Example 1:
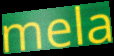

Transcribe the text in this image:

mela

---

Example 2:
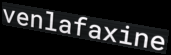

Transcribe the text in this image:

venlafaxine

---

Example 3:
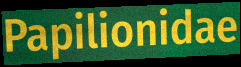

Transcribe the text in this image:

Papilionidae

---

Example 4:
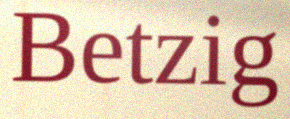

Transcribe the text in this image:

Betzig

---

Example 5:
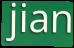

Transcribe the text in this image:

jian